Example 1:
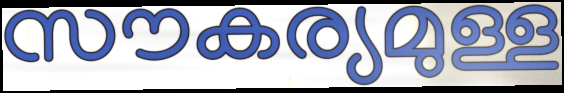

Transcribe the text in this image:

സൗകര്യമുള്ള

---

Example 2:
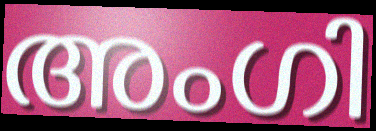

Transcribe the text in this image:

അംഗി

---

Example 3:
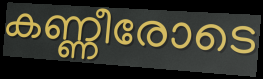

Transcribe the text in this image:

കണ്ണീരോടെ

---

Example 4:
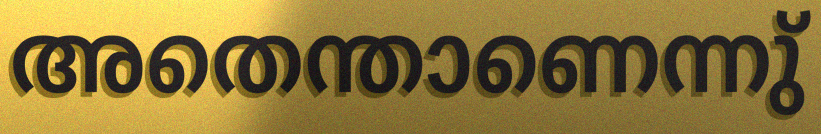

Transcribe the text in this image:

അതെന്താണെന്നു്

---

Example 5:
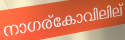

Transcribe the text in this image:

നാഗര്കോവിലില്